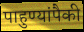
पाहुण्यांपैकी